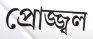
প্ৰোজ্জ্বল